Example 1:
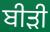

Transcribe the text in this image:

ਬੀਡ਼ੀ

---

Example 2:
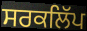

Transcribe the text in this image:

ਸਰਕਲਿੱਪ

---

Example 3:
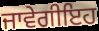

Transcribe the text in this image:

ਜਾਵੇਗੀਇਹ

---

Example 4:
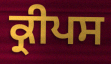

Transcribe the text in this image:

ਕ੍ਰੀਪਸ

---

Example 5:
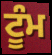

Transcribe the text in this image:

ਟੂੰਮ